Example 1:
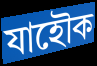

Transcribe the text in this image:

যাহৌক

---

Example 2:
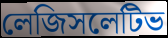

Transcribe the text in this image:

লেজিসলেটিভ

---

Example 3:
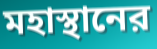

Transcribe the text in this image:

মহাস্থানের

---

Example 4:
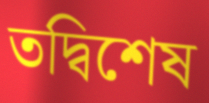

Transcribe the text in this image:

তদ্বিশেষ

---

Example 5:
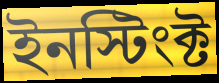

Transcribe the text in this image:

ইনস্টিংক্ট